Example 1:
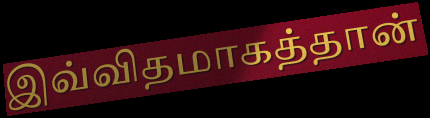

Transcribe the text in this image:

இவ்விதமாகத்தான்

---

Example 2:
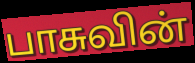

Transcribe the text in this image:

பாசுவின்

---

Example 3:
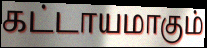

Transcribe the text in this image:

கட்டாயமாகும்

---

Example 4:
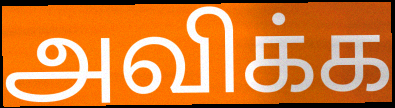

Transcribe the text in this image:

அவிக்க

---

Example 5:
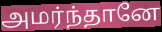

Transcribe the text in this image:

அமர்ந்தானே